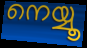
നെയ്യൂ